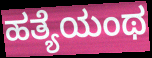
ಹತ್ಯೆಯಂಥ